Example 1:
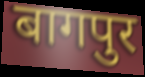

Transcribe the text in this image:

बागपुर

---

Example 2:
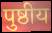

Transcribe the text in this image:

पुष्ठीय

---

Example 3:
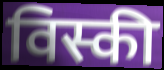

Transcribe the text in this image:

विस्की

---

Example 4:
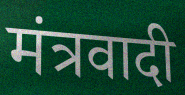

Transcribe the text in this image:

मंत्रवादी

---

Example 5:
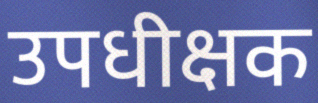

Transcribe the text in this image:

उपधीक्षक